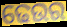
ଢେଉର